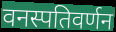
वनस्पतिवर्णन